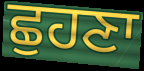
ਛੁਹਣਾ